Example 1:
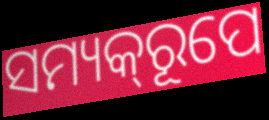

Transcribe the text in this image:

ସମ୍ୟକ୍‌ରୂପେ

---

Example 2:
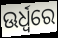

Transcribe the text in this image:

ଊର୍ଧ୍ୱରେ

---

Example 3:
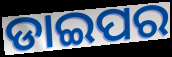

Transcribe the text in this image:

ଡାଇପର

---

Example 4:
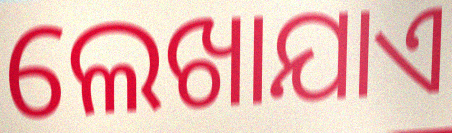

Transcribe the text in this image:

ଲେଖାଯାଏ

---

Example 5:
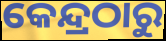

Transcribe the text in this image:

କେନ୍ଦ୍ରଠାରୁ